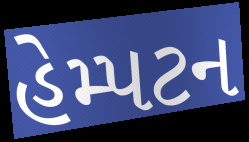
હેમ્પટન